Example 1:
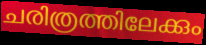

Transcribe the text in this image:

ചരിത്രത്തിലേക്കും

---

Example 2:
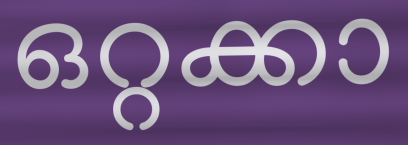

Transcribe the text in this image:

ഒറ്റക്കാ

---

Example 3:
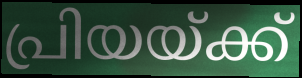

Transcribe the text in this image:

പ്രിയയ്ക്ക്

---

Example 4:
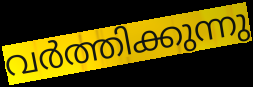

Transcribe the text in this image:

വർത്തിക്കുന്നു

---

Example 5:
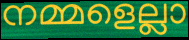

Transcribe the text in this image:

നമ്മളെല്ലാ